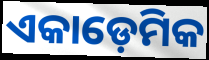
ଏକାଡ଼େମିକ